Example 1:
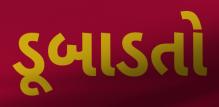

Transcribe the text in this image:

ડૂબાડતો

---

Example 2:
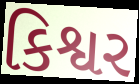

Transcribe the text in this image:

કિશ્વર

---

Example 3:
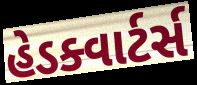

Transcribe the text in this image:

હેડક્વાર્ટર્સ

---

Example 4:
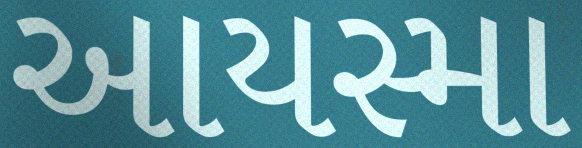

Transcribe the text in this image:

આયસ્મા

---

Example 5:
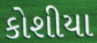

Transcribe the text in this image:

કોશીયા